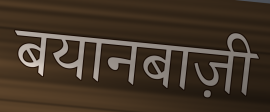
बयानबाज़ी